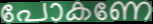
പോകണേ